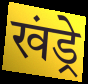
खंड्रे